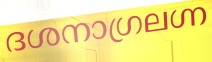
ദശനാഗ്രലഗ്ന